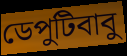
ডেপুটিবাবু